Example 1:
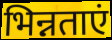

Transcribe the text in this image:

भिन्नताएं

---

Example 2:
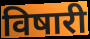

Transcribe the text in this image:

विषारी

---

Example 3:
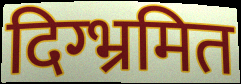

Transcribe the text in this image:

दिग्भ्रमित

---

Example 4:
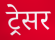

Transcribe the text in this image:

ट्रेसर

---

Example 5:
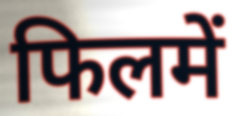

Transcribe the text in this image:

फिलमें